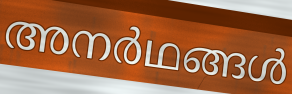
അനർഥങ്ങൾ